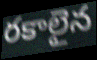
రకాలైన